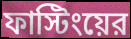
ফাস্টিংয়ের